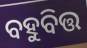
ବହୁବିତ୍ତ